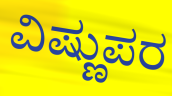
ವಿಷ್ಣುಪರ